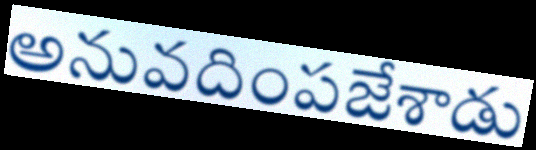
అనువదింపజేశాడు